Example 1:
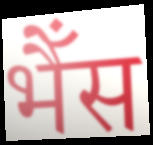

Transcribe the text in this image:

भैँस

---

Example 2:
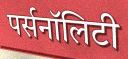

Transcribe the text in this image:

पर्सनॉलिटी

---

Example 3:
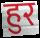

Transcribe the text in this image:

हुर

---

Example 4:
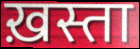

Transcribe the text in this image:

ख़स्ता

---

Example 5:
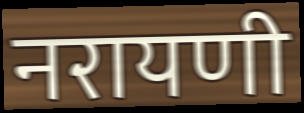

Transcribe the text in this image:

नरायणी